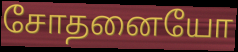
சோதனையோ